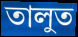
তালুত